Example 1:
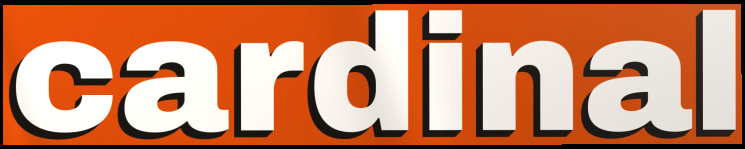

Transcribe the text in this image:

cardinal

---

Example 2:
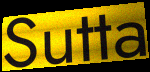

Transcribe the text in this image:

Sutta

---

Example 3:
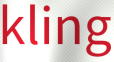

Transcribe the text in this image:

kling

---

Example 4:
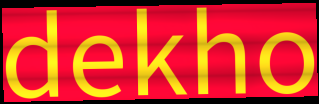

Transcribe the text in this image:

dekho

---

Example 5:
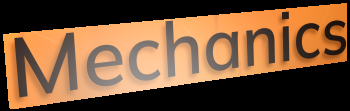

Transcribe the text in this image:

Mechanics